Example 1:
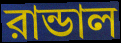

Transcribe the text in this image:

রান্ডাল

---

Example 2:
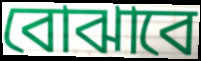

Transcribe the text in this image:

বোঝাবে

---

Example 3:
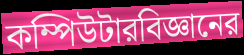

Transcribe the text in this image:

কম্পিউটারবিজ্ঞানের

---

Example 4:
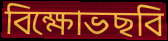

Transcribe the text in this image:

বিক্ষোভছবি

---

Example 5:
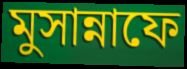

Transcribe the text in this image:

মুসান্নাফে